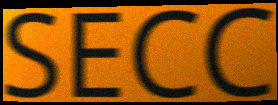
SECC